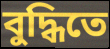
বুদ্ধিতে